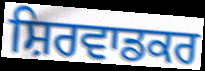
ਸ਼ਿਰਵਾਡਕਰ